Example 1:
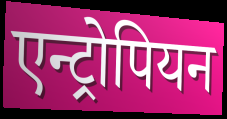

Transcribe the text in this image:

एन्ट्रोपियन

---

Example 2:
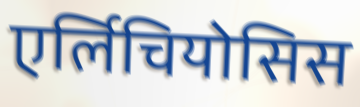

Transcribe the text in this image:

एर्लिचियोसिस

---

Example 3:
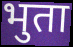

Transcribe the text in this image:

भुता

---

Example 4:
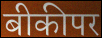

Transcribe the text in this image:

बीकीपर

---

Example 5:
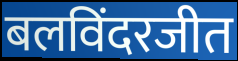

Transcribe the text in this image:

बलविंदरजीत